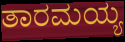
ತಾರಮಯ್ಯ